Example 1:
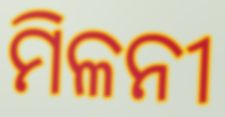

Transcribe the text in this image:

ମିଳନୀ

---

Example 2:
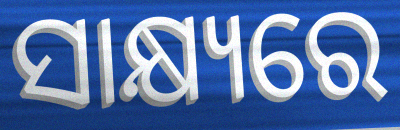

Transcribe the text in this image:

ସାକ୍ଷ୍ୟରେ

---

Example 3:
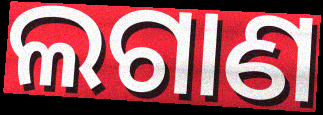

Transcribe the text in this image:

ଲଗାଣ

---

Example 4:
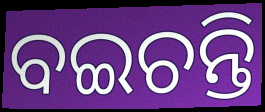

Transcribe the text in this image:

ବଇଚନ୍ତି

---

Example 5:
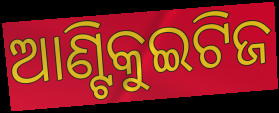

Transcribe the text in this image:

ଆଣ୍ଟିକୁଇଟିଜ